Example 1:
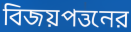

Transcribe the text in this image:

বিজয়পত্তনের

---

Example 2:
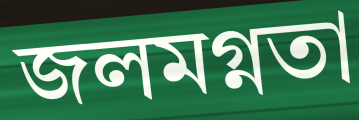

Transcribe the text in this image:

জলমগ্নতা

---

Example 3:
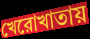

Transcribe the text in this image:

খেরোখাতায়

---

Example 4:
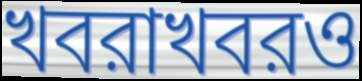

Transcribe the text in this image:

খবরাখবরও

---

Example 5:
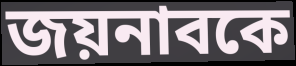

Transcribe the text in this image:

জয়নাবকে